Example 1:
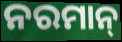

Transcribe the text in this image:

ନରମାନ୍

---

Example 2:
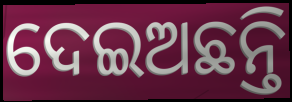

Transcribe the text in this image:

ଦେଇଅଛନ୍ତି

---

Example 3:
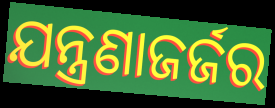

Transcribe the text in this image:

ଯନ୍ତ୍ରଣାଜର୍ଜର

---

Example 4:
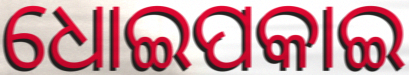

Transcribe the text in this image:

ଧୋଇପକାଇ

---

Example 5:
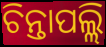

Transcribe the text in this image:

ଚିନ୍ତାପଲ୍ଲି